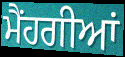
ਮੈਂਹਗੀਆਂ